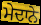
ਮੇਦਾਨੇ